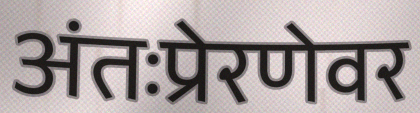
अंतःप्रेरणेवर